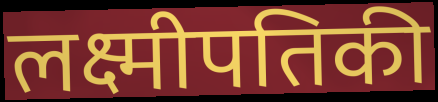
लक्ष्मीपतिकी